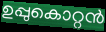
ഉപ്പുകൊറ്റൻ